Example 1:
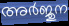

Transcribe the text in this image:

അർജുന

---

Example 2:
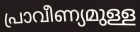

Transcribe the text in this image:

പ്രാവീണ്യമുള്ള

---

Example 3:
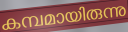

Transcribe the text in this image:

കമ്പമായിരുന്നു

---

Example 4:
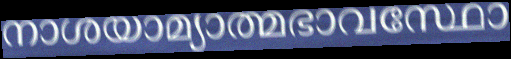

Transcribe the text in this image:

നാശയാമ്യാത്മഭാവസ്ഥോ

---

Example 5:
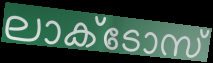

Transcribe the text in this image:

ലാക്ടോസ്